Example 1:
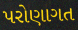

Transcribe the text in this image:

પરોણાગત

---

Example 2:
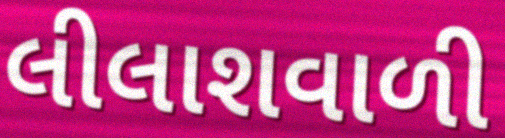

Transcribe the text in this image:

લીલાશવાળી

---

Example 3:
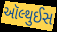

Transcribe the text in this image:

ઑલ્થુઈસ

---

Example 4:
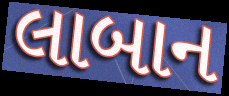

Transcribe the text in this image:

લાબાન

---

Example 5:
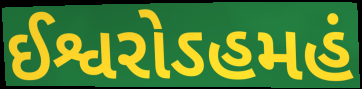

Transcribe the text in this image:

ઈશ્વરોઽહમહં